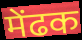
मेंढक